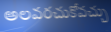
అలవరచుకోవచ్చు